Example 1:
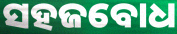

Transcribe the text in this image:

ସହଜବୋଧ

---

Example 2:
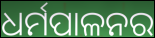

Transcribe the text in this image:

ଧର୍ମପାଳନର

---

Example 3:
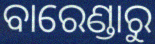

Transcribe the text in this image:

ବାରେଣ୍ଡାରୁ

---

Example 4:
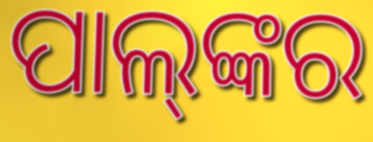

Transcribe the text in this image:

ପାଲ୍‍ଙ୍କର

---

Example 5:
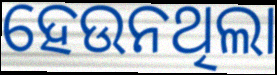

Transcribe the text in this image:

ହେଉନଥିଲା